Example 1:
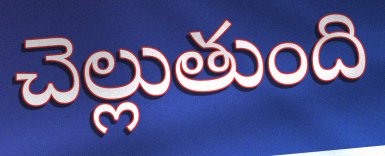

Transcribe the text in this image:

చెల్లుతుంది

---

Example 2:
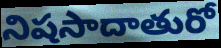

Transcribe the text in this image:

నిషసాదాతురో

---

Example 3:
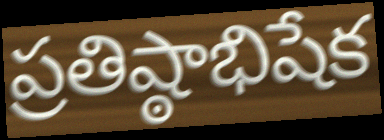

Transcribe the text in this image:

ప్రతిష్ఠాభిషేక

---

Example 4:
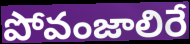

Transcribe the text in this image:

పోవంజాలిరే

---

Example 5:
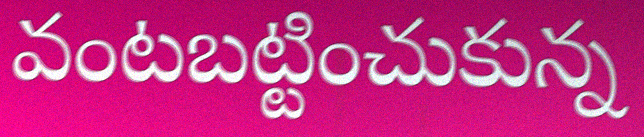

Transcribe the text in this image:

వంటబట్టించుకున్న